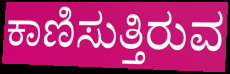
ಕಾಣಿಸುತ್ತಿರುವ